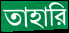
তাহারি